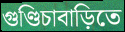
গুণ্ডিচাবাড়িতে